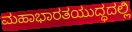
ಮಹಾಭಾರತಯುದ್ಧದಲ್ಲಿ